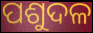
ପଶୁଦଳ